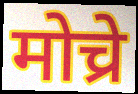
मोच्रे